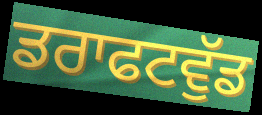
ਡਰਾਫਟਵੁੱਡ